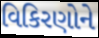
વિકિરણોને